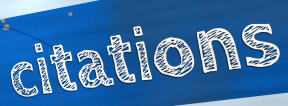
citations